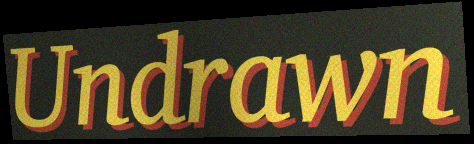
Undrawn